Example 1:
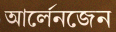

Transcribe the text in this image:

আৰ্লেনজেন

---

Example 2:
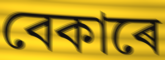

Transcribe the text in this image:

বেকাৰে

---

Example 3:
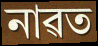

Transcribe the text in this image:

নাৱত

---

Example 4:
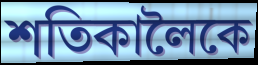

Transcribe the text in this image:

শতিকালৈকে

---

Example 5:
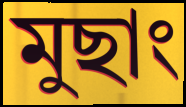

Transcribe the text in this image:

মুছাং